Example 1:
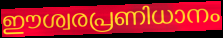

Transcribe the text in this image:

ഈശ്വരപ്രണിധാനം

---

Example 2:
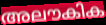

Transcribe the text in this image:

അലൗകിക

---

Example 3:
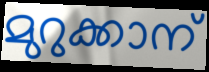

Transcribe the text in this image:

മുറുക്കാന്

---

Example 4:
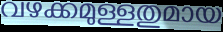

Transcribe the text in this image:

വഴക്കമുള്ളതുമായ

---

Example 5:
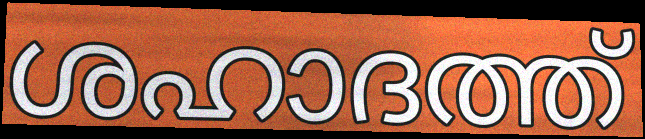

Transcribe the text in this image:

ശഹാദത്ത്